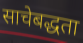
साचेबद्धता